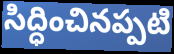
సిద్ధించినప్పటి